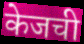
केजची